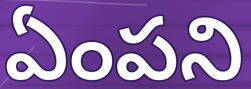
ఏంపని